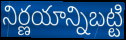
నిర్ణయాన్నిబట్టి